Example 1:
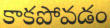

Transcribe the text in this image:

కాకపోవడం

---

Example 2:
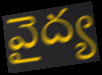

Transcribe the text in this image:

వైద్య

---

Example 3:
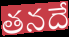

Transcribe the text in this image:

తనదే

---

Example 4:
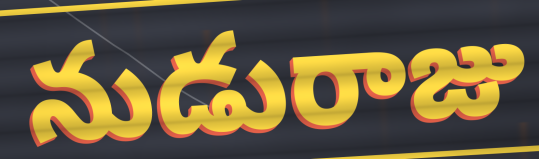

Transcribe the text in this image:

నుడురాజు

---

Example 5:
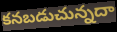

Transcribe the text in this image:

కనబడుచున్నదా